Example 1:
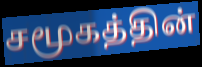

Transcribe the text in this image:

சமூகத்தின்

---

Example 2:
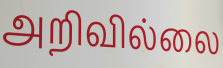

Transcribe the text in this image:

அறிவில்லை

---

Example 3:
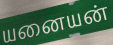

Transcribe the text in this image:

யனையன்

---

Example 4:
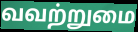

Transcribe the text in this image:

வவற்றுமை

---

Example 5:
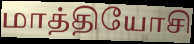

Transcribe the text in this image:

மாத்தியோசி